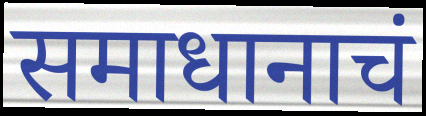
समाधानाचं